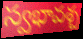
స్వభావశ్చ